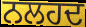
ਨਲਹਦ